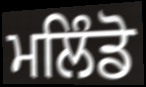
ਮਲਿੰਡੋ